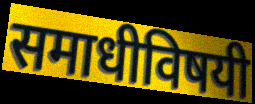
समाधीविषयी